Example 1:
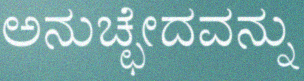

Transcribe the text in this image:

ಅನುಚ್ಛೇದವನ್ನು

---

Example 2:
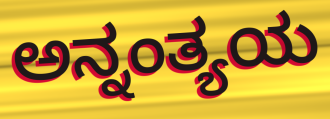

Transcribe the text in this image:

ಅನ್ನಂತ್ಯಯ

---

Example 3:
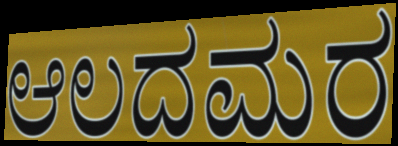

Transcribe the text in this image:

ಆಲದಮರ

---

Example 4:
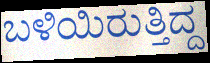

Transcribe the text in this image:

ಬಳಿಯಿರುತ್ತಿದ್ದ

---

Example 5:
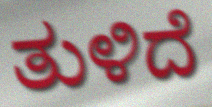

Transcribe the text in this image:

ತುಳಿದೆ